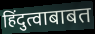
हिंदुत्वाबाबत